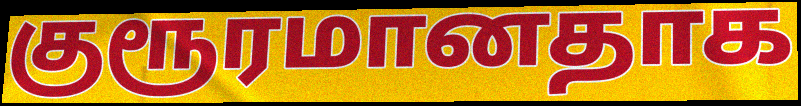
குரூரமானதாக